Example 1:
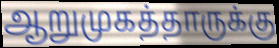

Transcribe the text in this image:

ஆறுமுகத்தாருக்கு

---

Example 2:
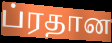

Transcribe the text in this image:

ப்ரதான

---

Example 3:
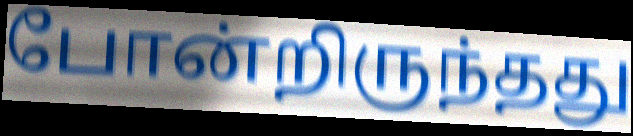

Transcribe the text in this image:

போன்றிருந்தது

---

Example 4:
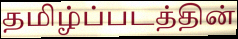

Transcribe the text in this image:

தமிழ்ப்படத்தின்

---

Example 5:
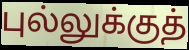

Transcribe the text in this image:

புல்லுக்குத்